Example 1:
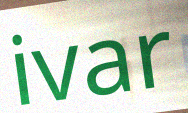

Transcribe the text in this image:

ivar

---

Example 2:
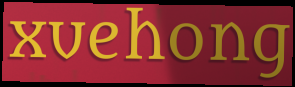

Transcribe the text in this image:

xuehong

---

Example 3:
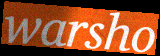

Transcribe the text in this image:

warsho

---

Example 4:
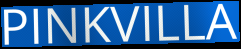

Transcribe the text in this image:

PINKVILLA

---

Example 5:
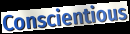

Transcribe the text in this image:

Conscientious